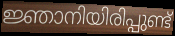
ജ്ഞാനിയിരിപ്പുണ്ട്